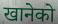
खानेको